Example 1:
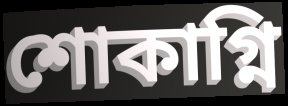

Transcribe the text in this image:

শোকাগ্নি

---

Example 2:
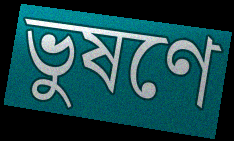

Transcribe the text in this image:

ভুষণে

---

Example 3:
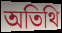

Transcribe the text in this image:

অতিথি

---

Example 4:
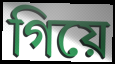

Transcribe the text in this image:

গিয়ে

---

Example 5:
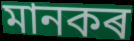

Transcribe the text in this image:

মানকৰ